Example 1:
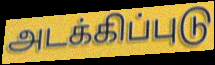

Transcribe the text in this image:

அடக்கிப்புடு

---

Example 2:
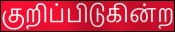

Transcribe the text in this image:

குறிப்பிடுகின்ற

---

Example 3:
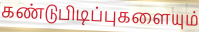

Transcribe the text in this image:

கண்டுபிடிப்புகளையும்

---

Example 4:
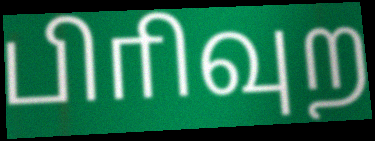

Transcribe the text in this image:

பிரிவுற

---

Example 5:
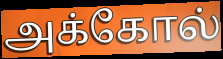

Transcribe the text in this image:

அக்கோல்